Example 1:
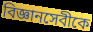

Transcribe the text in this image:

বিজ্ঞানসেবীকে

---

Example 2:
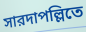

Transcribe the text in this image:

সারদাপল্লিতে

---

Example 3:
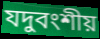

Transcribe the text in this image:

যদুবংশীয়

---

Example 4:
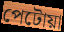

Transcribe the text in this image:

পেটোয়া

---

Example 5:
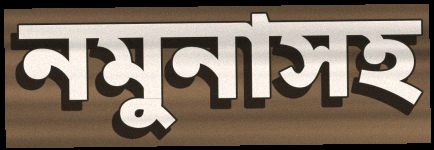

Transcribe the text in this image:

নমুনাসহ